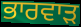
ਭਾਰਵਾੜ